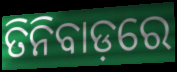
ତିନିବାଡ଼ରେ